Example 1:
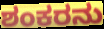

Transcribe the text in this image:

ಶಂಕರನು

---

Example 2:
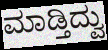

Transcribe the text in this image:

ಮಾಡ್ತಿದ್ವು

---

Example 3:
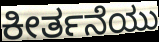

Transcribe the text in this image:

ಕೀರ್ತನೆಯು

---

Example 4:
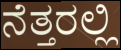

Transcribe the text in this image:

ನೆತ್ತರಲ್ಲಿ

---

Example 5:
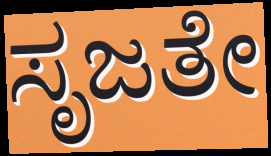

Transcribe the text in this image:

ಸೃಜತೇ